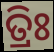
ତ୍ରିଃ